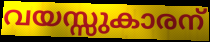
വയസ്സുകാരന്